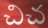
చిచ